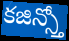
కజిన్స్తో